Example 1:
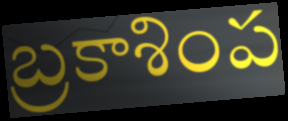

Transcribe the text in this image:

బ్రకాశింప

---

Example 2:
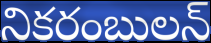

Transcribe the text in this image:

నికరంబులన్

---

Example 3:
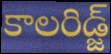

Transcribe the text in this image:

కాలరిడ్జ్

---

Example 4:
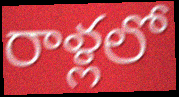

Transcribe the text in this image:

రాళ్లలో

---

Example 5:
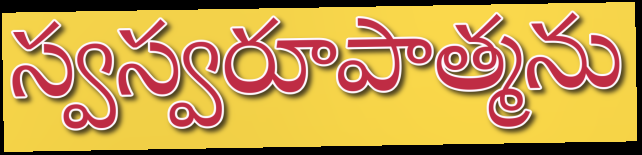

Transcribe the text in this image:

స్వస్వరూపాత్మను